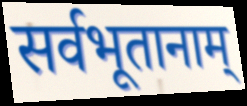
सर्वभूतानाम्